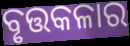
ବୃତ୍ତକଳାର